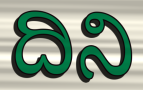
ದಿನಿ